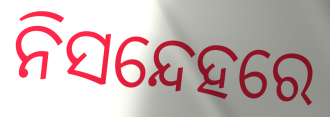
ନିସନ୍ଦେହରେ